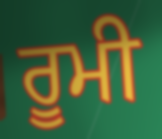
ਰੂਮੀ